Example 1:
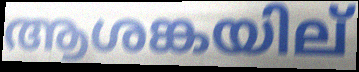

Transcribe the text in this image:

ആശങ്കയില്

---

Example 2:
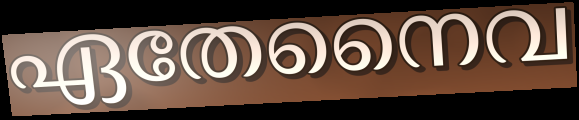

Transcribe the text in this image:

ഏതേനൈവ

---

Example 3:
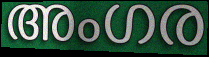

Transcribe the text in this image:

അംഗര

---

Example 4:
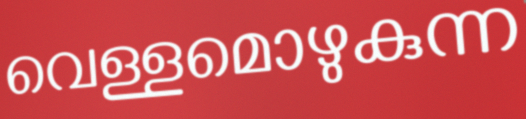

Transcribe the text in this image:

വെള്ളമൊഴുകുന്ന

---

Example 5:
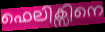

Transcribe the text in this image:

ഫെലിക്സിനെ